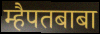
म्हैपतबाबा